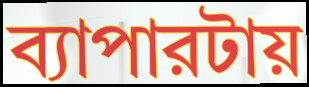
ব্যাপারটায়